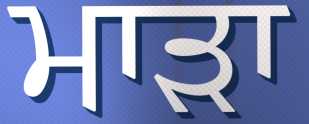
ਮਾਡ਼ਾ